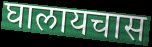
घालायचास